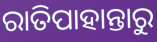
ରାତିପାହାନ୍ତାରୁ